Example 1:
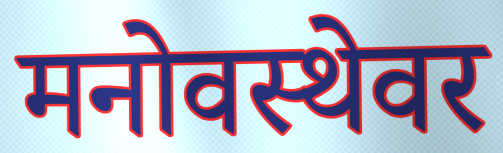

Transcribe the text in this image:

मनोवस्थेवर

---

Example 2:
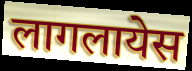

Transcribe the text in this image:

लागलायेस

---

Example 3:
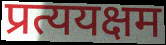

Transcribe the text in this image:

प्रत्ययक्षम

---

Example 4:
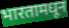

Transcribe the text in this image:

भारतामधून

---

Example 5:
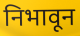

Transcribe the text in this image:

निभावून